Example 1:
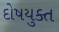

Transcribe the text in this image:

દોષયુક્ત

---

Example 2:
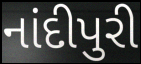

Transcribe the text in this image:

નાંદીપુરી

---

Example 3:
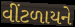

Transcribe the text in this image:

વીંટળાયને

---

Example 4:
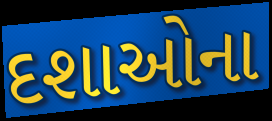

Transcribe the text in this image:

દશાઓના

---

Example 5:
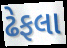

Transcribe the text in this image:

ઢેફલા